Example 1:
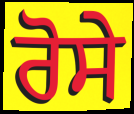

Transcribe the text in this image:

ਰੋਸੇ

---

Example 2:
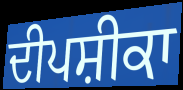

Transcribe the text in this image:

ਦੀਪਸ਼ੀਕਾ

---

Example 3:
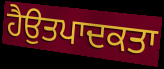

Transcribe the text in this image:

ਹੈਉਤਪਾਦਕਤਾ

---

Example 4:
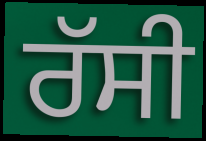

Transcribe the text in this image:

ਰੱਸੀ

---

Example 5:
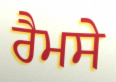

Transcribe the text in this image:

ਰੈਮਸੇ